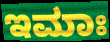
ಇಮಾಃ